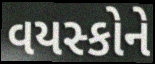
વયસ્કોને